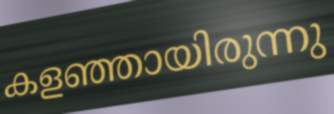
കളഞ്ഞായിരുന്നു